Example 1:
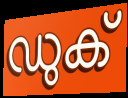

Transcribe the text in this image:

ഡുക്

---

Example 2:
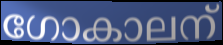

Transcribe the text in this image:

ഗോകാലന്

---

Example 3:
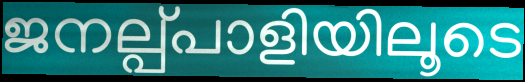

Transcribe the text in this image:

ജനല്പ്പാളിയിലൂടെ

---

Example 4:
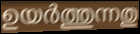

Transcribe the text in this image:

ഉയർത്തുന്നതു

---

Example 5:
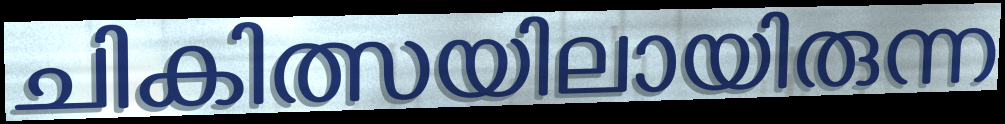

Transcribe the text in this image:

ചികിത്സയിലായിരുന്ന